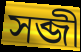
সব্জী